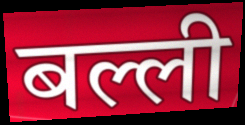
बल्ली